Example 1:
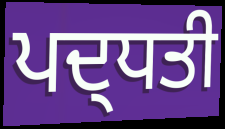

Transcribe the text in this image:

ਪਦ੍ਧਤੀ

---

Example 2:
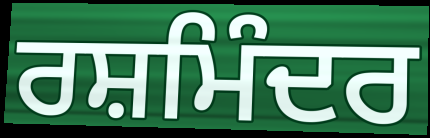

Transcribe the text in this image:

ਰਸ਼ਮਿੰਦਰ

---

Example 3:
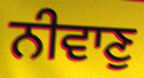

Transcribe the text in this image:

ਨੀਵਾਣੁ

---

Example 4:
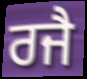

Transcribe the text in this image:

ਰਜੈ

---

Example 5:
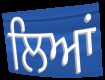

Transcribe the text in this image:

ਲਿਆਂ